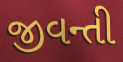
જીવન્તી